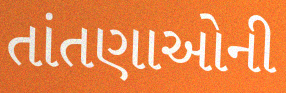
તાંતણાઓની